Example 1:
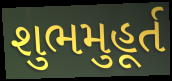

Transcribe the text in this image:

શુભમુહૂર્ત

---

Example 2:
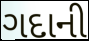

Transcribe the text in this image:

ગદાની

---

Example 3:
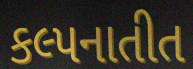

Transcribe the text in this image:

કલ્પનાતીત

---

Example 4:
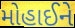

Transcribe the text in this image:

મોહાઈને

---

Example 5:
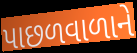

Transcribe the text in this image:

પાછળવાળાને